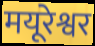
मयूरेश्वर